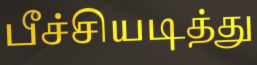
பீச்சியடித்து